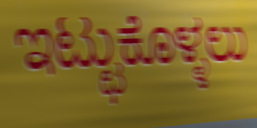
ಇಟ್ಟುಕೊಳ್ಳಲು